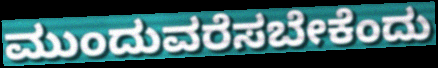
ಮುಂದುವರೆಸಬೇಕೆಂದು